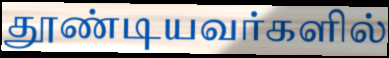
தூண்டியவர்களில்